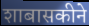
शाबासकीने